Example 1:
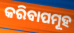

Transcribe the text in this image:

କରିବାପମୂହ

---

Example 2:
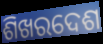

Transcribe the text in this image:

ଶିଖରଦେଶ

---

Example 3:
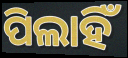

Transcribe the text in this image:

ପିଲାହିଁ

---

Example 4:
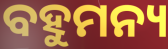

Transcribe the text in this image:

ବହୁମନ୍ୟ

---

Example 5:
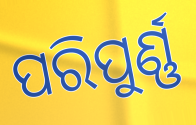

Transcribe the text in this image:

ପରିପୁର୍ଣ୍ଣ